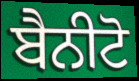
ਬੈਨੀਟੋ